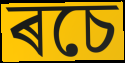
ৰচে